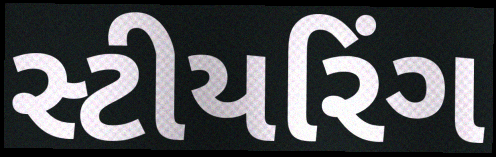
સ્ટીયરિંગ